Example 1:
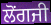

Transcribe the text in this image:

ਲੋਂਗਜੀ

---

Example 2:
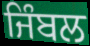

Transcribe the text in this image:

ਜਿੰਬਲ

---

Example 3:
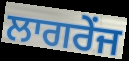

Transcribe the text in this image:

ਲਾਗਰੇਂਜ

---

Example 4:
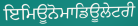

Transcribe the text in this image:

ਇਮਿਊਨੋਮਾਡਿਊਲੇਟਰੀ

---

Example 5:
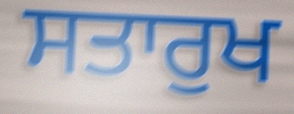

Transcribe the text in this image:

ਸਤਾਰੁਖ